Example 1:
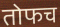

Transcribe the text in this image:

तोफच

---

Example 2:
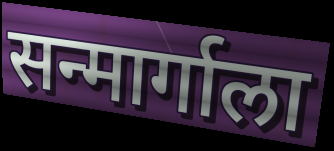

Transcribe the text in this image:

सन्मार्गाला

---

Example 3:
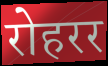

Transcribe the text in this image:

रोहरर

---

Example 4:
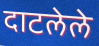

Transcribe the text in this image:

दाटलेले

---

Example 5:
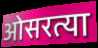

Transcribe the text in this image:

ओसरत्या